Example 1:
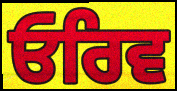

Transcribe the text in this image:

ਓਰਿਵ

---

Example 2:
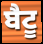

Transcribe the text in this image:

ਬੈਟੂ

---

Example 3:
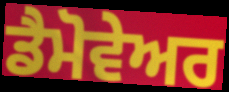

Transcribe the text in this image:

ਡੈਮੋਵੇਅਰ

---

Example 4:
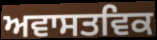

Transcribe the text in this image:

ਅਵਾਸਤਵਿਕ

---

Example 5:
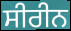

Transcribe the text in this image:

ਸੀਰੀਨ